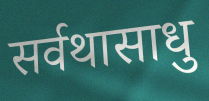
सर्वथासाधु